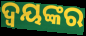
ଦ୍ବୟଙ୍କର